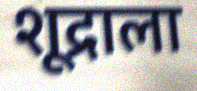
शूद्राला